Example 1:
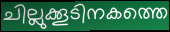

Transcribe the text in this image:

ചില്ലുക്കൂടിനകത്തെ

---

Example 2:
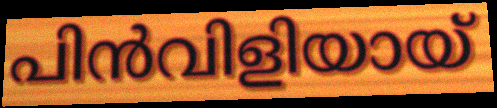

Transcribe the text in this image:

പിൻവിളിയായ്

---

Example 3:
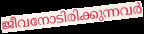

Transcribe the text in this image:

ജീവനോടിരിക്കുന്നവർ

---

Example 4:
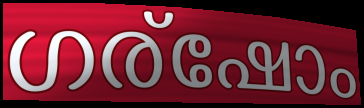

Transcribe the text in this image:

ഗര്ഷോം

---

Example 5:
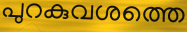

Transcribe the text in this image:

പുറകുവശത്തെ